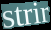
strir